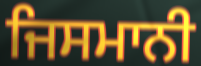
ਜਿਸਮਾਨੀ